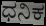
ಧನಿಕ